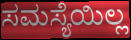
ಸಮಸ್ಯೆಯಿಲ್ಲ